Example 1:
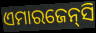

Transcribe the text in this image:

ଏମାରଜେନ୍‌ସି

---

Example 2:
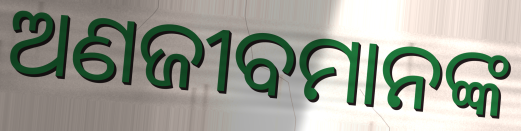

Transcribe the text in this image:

ଅଣଜୀବମାନଙ୍କ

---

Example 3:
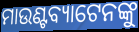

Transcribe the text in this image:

ମାଉଣ୍ଟବ୍ୟାଟେନଙ୍କୁ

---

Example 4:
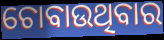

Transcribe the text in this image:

ଚୋବାଉଥିବାର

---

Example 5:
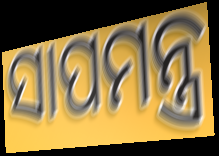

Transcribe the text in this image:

ସାପମନ୍ତ୍ର